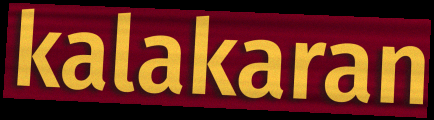
kalakaran